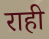
राही